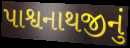
પાશ્વનાથજીનું